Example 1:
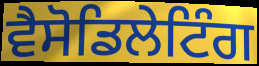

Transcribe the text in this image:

ਵੈਸੋਡਿਲੇਟਿੰਗ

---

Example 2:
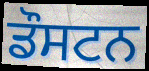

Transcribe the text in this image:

ਡੌਸਟਨ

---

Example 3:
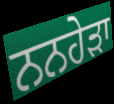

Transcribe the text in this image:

ਨਨਹੇੜਾ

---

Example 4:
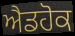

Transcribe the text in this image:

ਐਡਹੋਕ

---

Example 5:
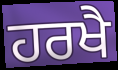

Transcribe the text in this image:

ਹਰਖੈ